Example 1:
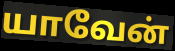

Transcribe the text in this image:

யாவேன்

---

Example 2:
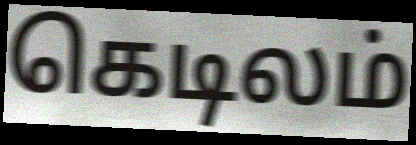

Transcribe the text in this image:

கெடிலம்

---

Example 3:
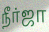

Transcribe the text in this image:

நீர்ஜா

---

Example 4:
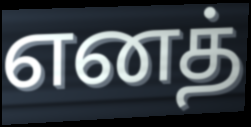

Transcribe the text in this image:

எனத்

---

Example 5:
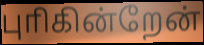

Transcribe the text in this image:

புரிகின்றேன்